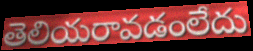
తెలియరావడంలేదు